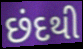
છંદથી